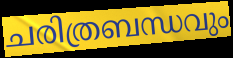
ചരിത്രബന്ധവും